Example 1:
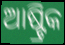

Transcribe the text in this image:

ଆଷ୍ଟ୍ରିକ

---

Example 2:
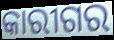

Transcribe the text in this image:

କାରୀଗର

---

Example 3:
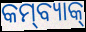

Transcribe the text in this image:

କମ୍‌ବ୍ୟାକ୍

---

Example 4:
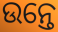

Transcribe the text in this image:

ଉନ୍ତେ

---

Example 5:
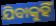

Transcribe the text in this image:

ଯିବାକୁହିଁ